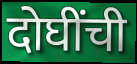
दोघींची